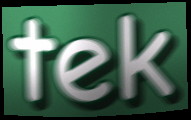
tek